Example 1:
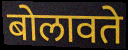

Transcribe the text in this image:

बोलावते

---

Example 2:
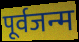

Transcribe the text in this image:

पूर्वजन्म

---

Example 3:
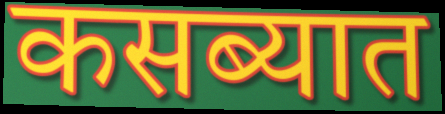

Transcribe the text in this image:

कसब्यात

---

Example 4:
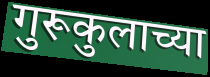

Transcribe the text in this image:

गुरूकुलाच्या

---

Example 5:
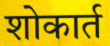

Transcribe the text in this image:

शोकार्त